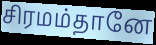
சிரமம்தானே